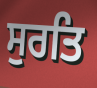
ਸੁਰਤਿ